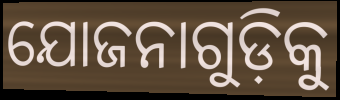
ଯୋଜନାଗୁଡ଼ିକୁ